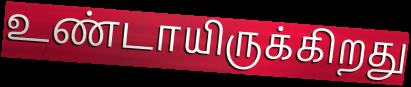
உண்டாயிருக்கிறது